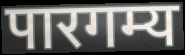
पारगम्य